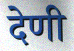
देणी